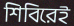
শিবিরেই